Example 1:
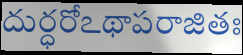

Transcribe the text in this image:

దుర్ధరోఽథాపరాజితః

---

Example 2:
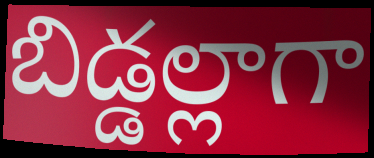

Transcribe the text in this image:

బిడ్డల్లాగా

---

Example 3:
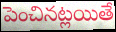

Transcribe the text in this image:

పెంచినట్లయితే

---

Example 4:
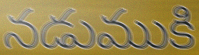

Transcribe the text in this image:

నడుముకి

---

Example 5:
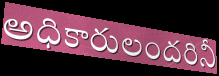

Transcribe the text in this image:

అధికారులందరినీ